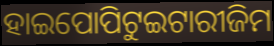
ହାଇପୋପିଟୁଇଟାରୀଜିମ